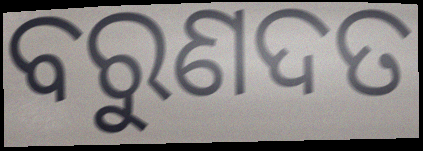
ବରୁଣଦତ